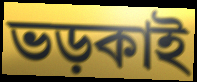
ভড়কাই